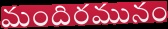
మందిరమునం